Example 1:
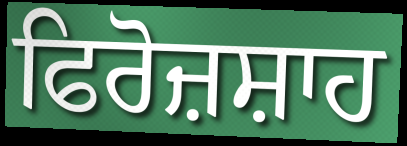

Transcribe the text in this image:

ਫਿਰੋਜ਼ਸ਼ਾਹ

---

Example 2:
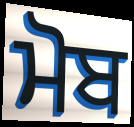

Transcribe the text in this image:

ਮੋਬ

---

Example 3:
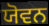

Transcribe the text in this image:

ਯੋਵਨ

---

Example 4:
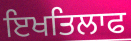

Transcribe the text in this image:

ਇਖਤਿਲਾਫ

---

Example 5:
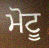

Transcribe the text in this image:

ਮੋਟੂ